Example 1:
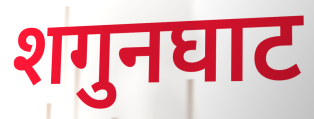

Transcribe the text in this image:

शगुनघाट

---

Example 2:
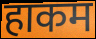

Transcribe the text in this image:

हाकम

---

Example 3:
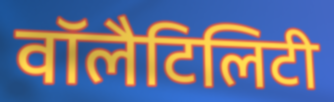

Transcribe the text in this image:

वॉलैटिलिटी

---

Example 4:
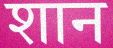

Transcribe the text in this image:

शान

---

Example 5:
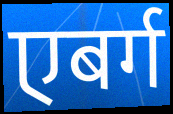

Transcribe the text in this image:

एबर्ग